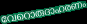
വേറൊരുദാഹരണം